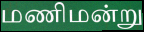
மணிமன்று